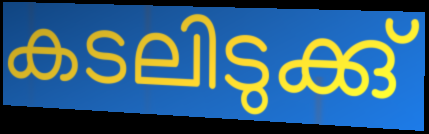
കടലിടുക്കു്